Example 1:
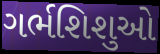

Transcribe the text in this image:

ગર્ભશિશુઓ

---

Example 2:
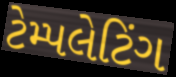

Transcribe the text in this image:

ટેમ્પલેટિંગ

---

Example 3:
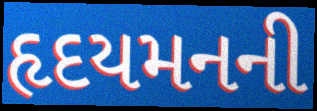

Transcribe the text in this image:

હૃદયમનની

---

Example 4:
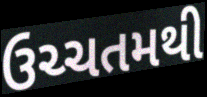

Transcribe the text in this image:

ઉચ્ચતમથી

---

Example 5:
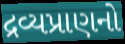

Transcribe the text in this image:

દ્રવ્યપ્રાણનો